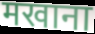
मखाना